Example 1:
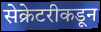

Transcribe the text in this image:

सेक्रेटरीकडून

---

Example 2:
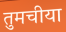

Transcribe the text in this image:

तुमचीया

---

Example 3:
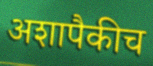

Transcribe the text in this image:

अशापैकीच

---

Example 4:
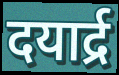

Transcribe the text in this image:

दयार्द्र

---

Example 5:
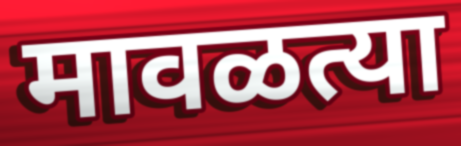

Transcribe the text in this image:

मावळत्या